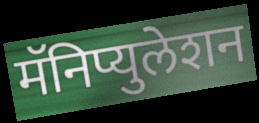
मॅनिप्युलेशन